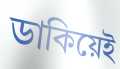
ডাকিয়েই